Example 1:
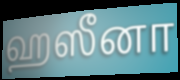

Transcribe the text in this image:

ஹஸீனா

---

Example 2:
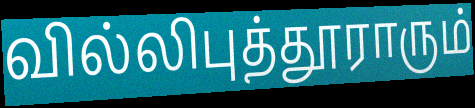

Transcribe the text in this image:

வில்லிபுத்தூராரும்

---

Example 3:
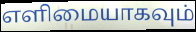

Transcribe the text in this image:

எளிமையாகவும்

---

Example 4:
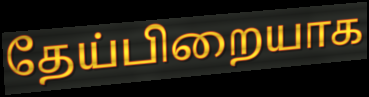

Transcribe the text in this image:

தேய்பிறையாக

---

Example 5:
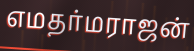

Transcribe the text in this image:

எமதர்மராஜன்